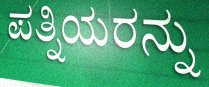
ಪತ್ನಿಯರನ್ನು